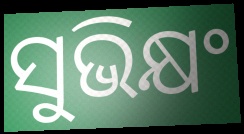
ସୁଭିକ୍ଷଂ